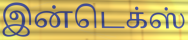
இன்டெக்ஸ்